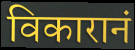
विकारानं